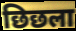
छिछला